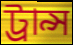
ট্রান্স